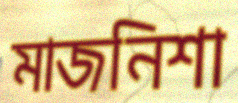
মাজনিশা